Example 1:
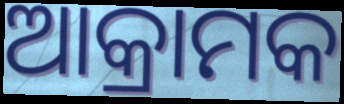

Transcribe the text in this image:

ଆକ୍ରାମକ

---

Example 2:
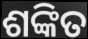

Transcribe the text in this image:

ଶଙ୍କିତ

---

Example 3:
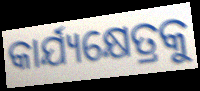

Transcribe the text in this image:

କାର୍ଯ୍ୟକ୍ଷେତ୍ରକୁ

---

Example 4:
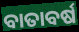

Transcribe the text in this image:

ବାତାବର୍ଷ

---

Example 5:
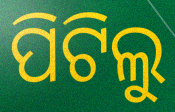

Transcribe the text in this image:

ପିଟିଲୁ